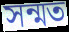
সন্মত